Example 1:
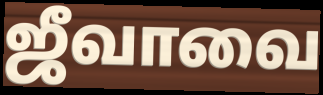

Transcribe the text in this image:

ஜீவாவை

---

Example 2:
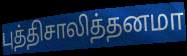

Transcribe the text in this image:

புத்திசாலித்தனமா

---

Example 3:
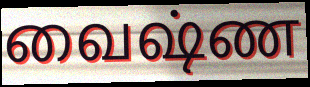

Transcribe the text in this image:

வைஷ்ண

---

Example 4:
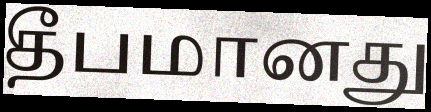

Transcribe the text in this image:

தீபமானது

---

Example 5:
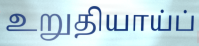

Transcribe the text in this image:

உறுதியாய்ப்